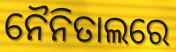
ନୈନିତାଲରେ